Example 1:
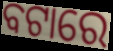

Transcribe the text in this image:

ବଟାରେ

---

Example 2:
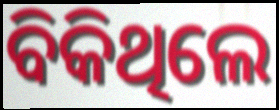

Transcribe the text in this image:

ବିକିଥିଲେ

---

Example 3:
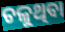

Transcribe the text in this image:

ଚଳୁଥିବା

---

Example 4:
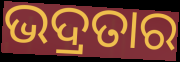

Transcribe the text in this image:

ଭଦ୍ରତାର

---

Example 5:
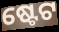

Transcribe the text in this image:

ଷ୍ଟେଟ